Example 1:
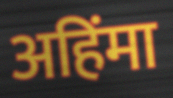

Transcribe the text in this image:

अहिंमा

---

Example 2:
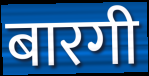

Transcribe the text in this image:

बारगी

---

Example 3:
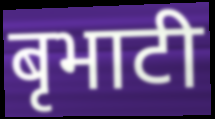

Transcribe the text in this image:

बृभाटी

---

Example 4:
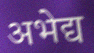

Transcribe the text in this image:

अभेद्य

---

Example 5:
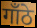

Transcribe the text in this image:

गाँठे